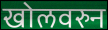
खोलवरुन